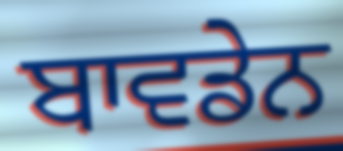
ਬਾਵਡੇਨ